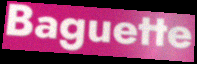
Baguette